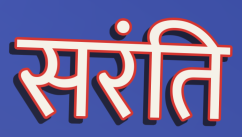
सरंति